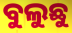
ବୁଲୁଛୁ